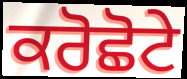
ਕਰੋਛੋਟੇ